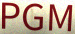
PGM